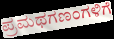
ಪ್ರಮಥಗಣಂಗಳಿಗೆ